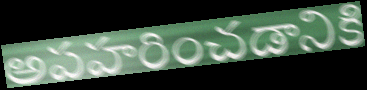
అపహరించడానికి